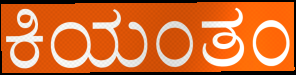
ಕಿಯಂತಂ